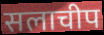
सलाचीप